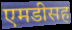
एमडीसह